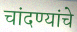
चांदण्यांचे